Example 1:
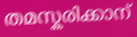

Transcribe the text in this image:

തമസ്കരിക്കാന്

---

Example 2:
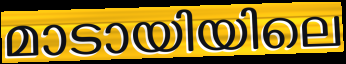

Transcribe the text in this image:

മാടായിയിലെ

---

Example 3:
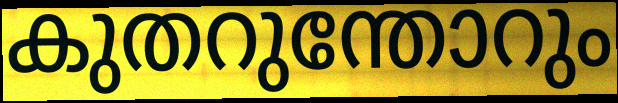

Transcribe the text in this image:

കുതറുന്തോറും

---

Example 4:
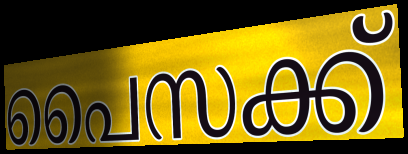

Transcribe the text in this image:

പൈസക്ക്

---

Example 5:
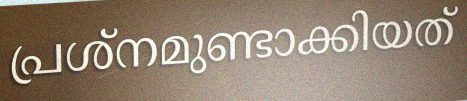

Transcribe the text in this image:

പ്രശ്നമുണ്ടാക്കിയത്